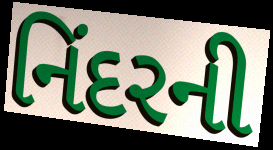
નિંદરની